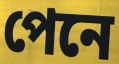
পেনে